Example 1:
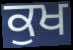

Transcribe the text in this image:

ਕੁਖ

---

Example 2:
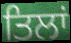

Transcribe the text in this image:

ਤਿਲਾਂ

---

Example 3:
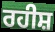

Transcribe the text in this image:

ਰਹੀਸ਼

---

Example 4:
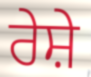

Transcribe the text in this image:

ਰੇਸ਼ੇ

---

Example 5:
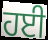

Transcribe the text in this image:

ਹਈ